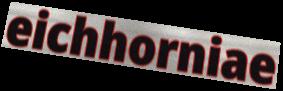
eichhorniae